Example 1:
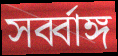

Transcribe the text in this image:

সর্ব্বাঙ্গ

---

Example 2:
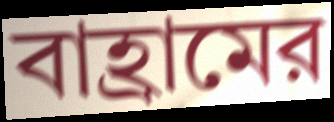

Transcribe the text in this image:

বাহ্রামের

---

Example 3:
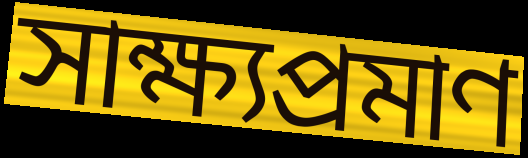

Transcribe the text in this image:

সাক্ষ্যপ্রমাণ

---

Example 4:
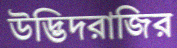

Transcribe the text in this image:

উদ্ভিদরাজির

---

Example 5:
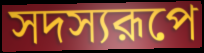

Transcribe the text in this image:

সদস্যরূপে